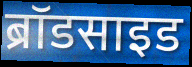
ब्रॉडसाइड